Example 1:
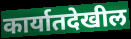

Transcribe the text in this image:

कार्यातदेखील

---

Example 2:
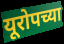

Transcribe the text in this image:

यूरोपच्या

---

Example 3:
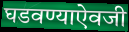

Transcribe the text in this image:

घडवण्याऐवजी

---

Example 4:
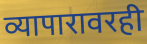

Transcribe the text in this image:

व्यापारावरही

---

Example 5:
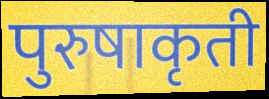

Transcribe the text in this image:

पुरुषाकृती